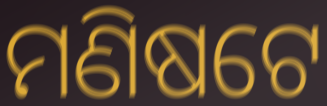
ମଣିଷଟେ